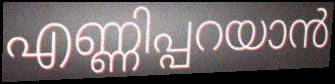
എണ്ണിപ്പറയാൻ